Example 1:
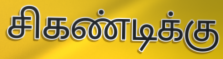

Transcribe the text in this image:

சிகண்டிக்கு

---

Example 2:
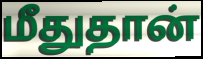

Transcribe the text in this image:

மீதுதான்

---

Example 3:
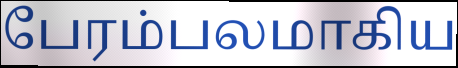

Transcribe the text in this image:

பேரம்பலமாகிய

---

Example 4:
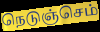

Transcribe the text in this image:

நெடுஞ்செம்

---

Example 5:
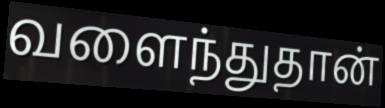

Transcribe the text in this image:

வளைந்துதான்